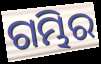
ଗମ୍ଭିର